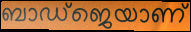
ബാഡ്ജെയാണ്